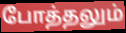
போத்தலும்